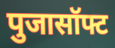
पुजासॉफ्ट